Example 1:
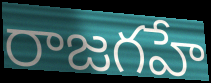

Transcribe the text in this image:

రాజగహే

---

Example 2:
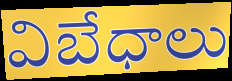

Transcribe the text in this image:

విబేధాలు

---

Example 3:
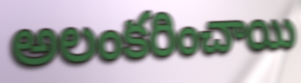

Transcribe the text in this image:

అలంకరించాయి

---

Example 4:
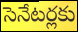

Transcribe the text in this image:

సెనేటర్లకు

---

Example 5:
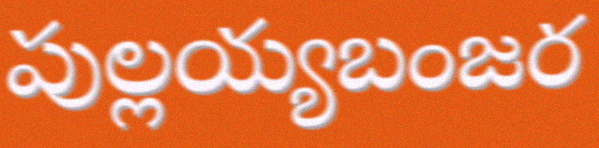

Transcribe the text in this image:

పుల్లయ్యబంజర